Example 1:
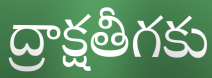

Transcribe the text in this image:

ద్రాక్షతీగకు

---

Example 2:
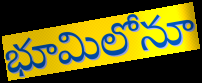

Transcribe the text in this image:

భూమిలోనూ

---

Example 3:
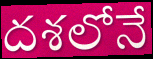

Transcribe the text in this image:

దశలోనే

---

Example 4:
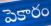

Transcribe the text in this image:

పెకారం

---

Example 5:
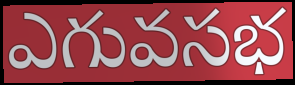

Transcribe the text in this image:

ఎగువసభ